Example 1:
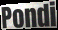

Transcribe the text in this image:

Pondi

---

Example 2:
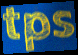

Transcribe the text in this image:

tps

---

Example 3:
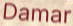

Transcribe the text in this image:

Damar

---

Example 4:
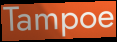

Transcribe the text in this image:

Tampoe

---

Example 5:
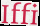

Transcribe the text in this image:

Iffi